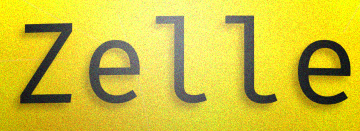
Zelle